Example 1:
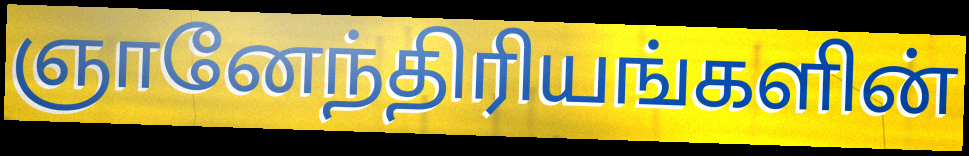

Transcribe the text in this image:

ஞானேந்திரியங்களின்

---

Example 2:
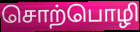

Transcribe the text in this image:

சொற்பொழி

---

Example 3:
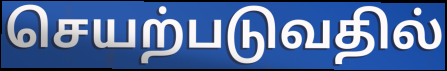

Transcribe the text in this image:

செயற்படுவதில்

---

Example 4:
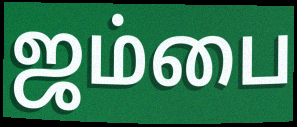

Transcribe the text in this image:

ஜம்பை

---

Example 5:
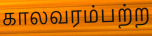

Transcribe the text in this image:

காலவரம்பற்ற